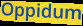
Oppidum